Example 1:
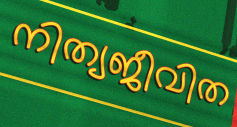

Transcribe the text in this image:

നിത്യജീവിത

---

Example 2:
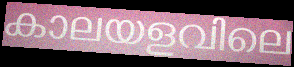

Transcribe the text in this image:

കാലയളവിലെ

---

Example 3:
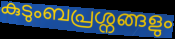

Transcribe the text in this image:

കുടുംബപ്രശ്നങ്ങളും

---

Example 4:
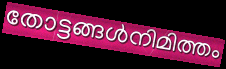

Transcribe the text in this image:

തോട്ടങ്ങൾനിമിത്തം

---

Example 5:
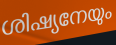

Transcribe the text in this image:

ശിഷ്യനേയും